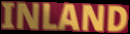
INLAND